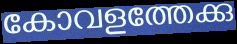
കോവളത്തേക്കു